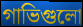
গাভিগুলো